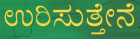
ಉರಿಸುತ್ತೇನೆ